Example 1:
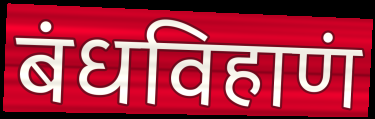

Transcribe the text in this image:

बंधविहाणं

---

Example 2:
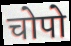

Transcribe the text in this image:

चोपो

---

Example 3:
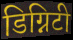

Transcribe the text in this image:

डिग्निटी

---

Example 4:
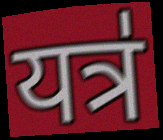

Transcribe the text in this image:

यत्र॑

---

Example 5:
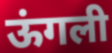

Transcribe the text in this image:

ऊंगली